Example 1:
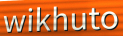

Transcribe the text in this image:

wikhuto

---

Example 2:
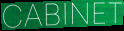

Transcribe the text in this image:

CABINET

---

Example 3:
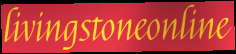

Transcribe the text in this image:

livingstoneonline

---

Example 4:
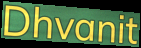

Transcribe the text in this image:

Dhvanit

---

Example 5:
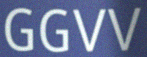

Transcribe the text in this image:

GGVV